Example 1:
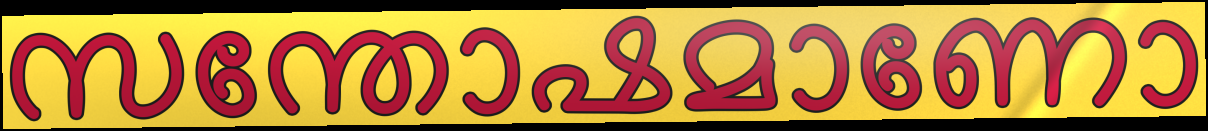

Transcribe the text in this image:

സന്തോഷമാണോ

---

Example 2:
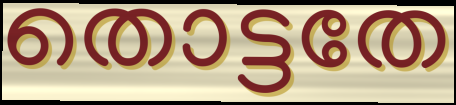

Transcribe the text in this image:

തൊട്ടതേ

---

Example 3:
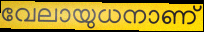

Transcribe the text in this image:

വേലായുധനാണ്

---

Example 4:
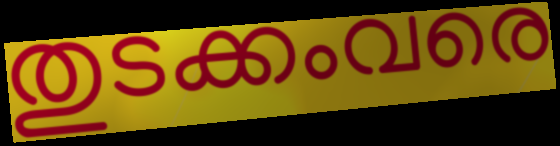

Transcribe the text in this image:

തുടക്കംവരെ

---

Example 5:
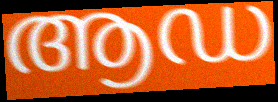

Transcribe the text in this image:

ആഡ